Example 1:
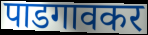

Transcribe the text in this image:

पाडगावकर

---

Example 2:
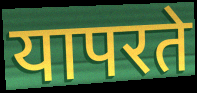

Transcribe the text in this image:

यापरते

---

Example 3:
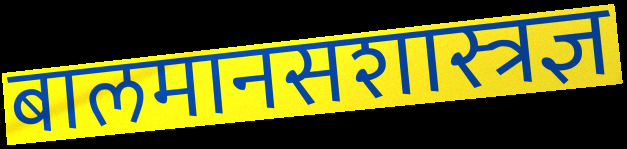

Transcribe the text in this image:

बालमानसशास्त्रज्ञ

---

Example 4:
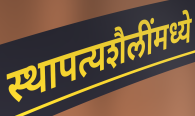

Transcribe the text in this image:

स्थापत्यशैलींमध्ये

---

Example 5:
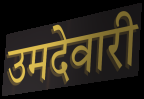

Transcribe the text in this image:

उमदेवारी